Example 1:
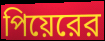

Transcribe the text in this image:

পিয়েরের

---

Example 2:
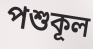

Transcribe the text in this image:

পশুকূল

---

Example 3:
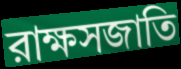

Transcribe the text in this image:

রাক্ষসজাতি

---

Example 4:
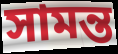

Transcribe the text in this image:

সামন্ত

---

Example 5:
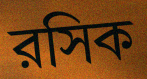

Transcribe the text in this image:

রসিক